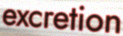
excretion